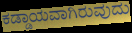
ಕಡ್ಡಾಯವಾಗಿರುವುದು